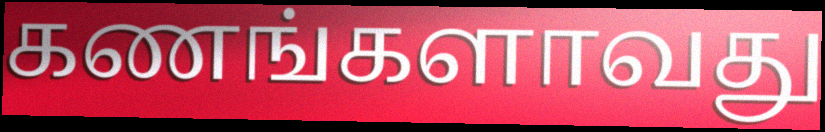
கணங்களாவது